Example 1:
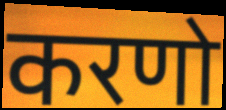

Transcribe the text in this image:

करणो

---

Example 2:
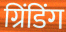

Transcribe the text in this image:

ग्रिंडिंग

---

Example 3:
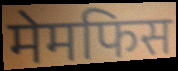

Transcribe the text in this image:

मेमफिस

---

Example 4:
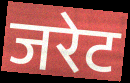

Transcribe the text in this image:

जरेट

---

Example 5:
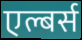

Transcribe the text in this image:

एल्बर्स